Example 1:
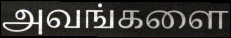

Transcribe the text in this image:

அவங்களை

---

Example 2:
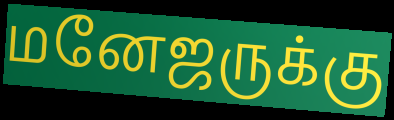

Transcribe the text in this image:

மனேஜருக்கு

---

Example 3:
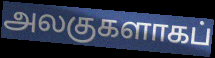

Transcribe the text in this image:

அலகுகளாகப்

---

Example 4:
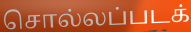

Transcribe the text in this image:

சொல்லப்படக்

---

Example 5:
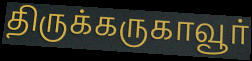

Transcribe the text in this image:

திருக்கருகாவூர்